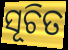
ସୂଚିତ